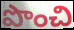
పొంచి